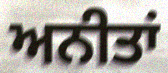
ਅਨੀਤਾਂ